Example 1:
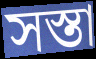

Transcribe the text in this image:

সস্তা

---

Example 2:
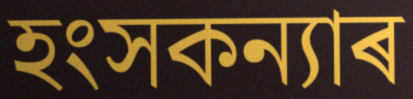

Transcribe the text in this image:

হংসকন্যাৰ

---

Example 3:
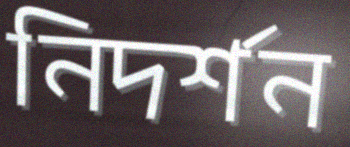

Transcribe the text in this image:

নিদৰ্শন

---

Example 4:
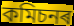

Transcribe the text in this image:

কমিচনৰ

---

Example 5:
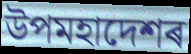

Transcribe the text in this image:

উপমহাদেশৰ